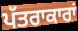
ਪੱਤਰਾਕਾਰਾਂ